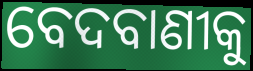
ବେଦବାଣୀକୁ